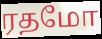
ரதமோ